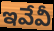
ఇవేవీ